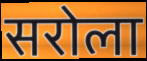
सरोला